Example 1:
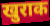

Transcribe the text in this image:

खुराक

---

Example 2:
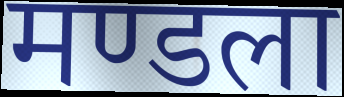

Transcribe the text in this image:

मण्डला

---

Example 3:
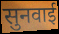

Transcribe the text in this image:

सुनवाई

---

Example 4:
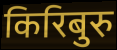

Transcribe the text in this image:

किरिबुरु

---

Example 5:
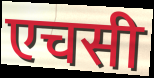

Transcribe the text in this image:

एचसी